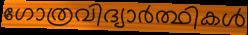
ഗോത്രവിദ്യാർത്ഥികൾ